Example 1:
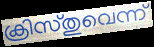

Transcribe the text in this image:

ക്രിസ്തുവെന്ന്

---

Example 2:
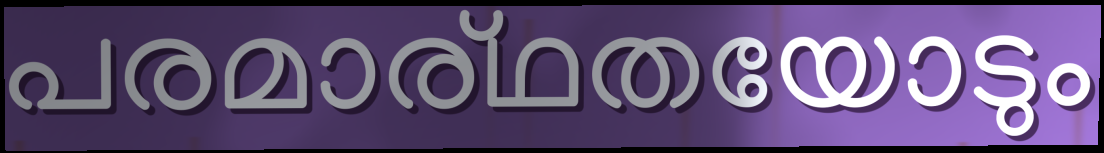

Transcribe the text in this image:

പരമാര്ഥതയോടും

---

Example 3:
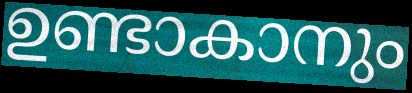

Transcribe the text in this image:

ഉണ്ടാകാനും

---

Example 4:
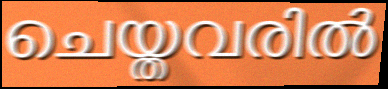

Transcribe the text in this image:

ചെയ്തവരിൽ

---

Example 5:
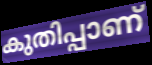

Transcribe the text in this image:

കുതിപ്പാണ്